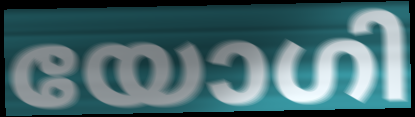
യോഗി